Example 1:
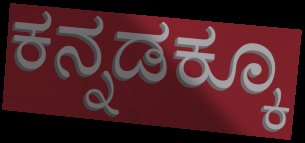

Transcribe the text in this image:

ಕನ್ನಡಕ್ಕೂ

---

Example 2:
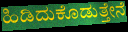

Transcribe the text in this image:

ಹಿಡಿದುಕೊಡುತ್ತೇನೆ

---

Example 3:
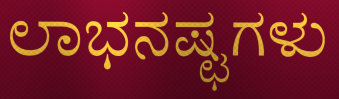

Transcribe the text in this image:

ಲಾಭನಷ್ಟಗಳು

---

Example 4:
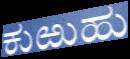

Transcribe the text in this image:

ಕುಱುಹು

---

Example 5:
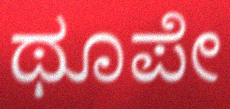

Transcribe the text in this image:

ಥೂಪೇ